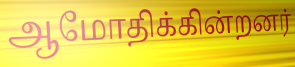
ஆமோதிக்கின்றனர்